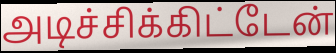
அடிச்சிக்கிட்டேன்